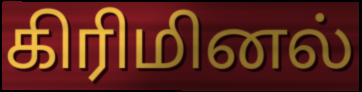
கிரிமினல்